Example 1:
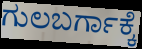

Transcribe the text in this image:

ಗುಲಬರ್ಗಾಕ್ಕೆ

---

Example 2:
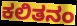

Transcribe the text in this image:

ಕಲಿತನಂ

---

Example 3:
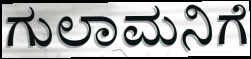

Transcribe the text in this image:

ಗುಲಾಮನಿಗೆ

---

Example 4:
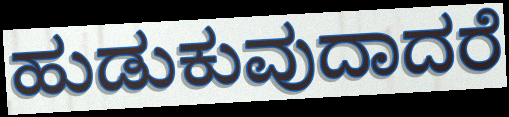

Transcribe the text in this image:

ಹುಡುಕುವುದಾದರೆ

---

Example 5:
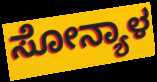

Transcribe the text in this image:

ಸೋನ್ಯಾಳ